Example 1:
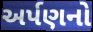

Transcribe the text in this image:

અર્પણનો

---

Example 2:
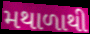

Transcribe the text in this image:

મથાળાથી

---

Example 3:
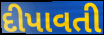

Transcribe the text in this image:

દીપાવતી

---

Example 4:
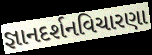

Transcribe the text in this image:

જ્ઞાનદર્શનવિચારણા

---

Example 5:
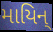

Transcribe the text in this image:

માયિન્